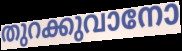
തുറക്കുവാനോ